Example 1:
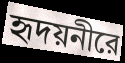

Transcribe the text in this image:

হৃদয়নীরে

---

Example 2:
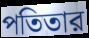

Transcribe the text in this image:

পতিতার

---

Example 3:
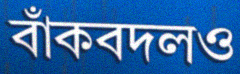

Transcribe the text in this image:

বাঁকবদলও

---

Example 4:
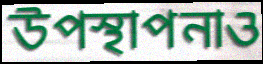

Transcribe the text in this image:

উপস্থাপনাও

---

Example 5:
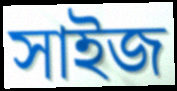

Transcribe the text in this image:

সাইজ